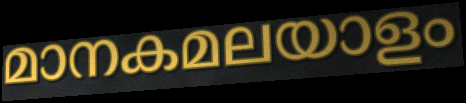
മാനകമലയാളം